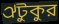
ঐটুকুর